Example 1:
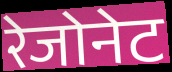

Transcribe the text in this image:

रेजोनेट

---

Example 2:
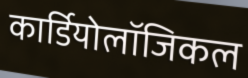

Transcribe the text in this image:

कार्डियोलॉजिकल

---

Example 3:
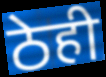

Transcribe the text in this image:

ठेही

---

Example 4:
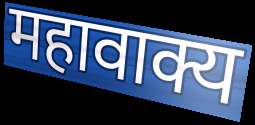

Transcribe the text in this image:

महावाक्य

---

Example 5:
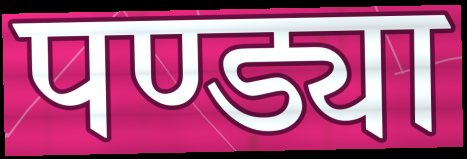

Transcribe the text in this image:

पण्ड्या